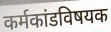
कर्मकांडविषयक